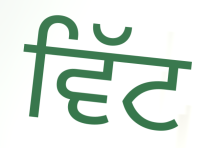
ਵਿੱਟ